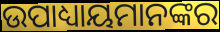
ଉପାଧ୍ୟାୟମାନଙ୍କର